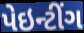
પેઇન્ટીંગ